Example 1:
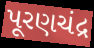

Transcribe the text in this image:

પૂરણચંદ્ર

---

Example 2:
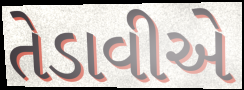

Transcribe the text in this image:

તેડાવીએ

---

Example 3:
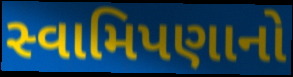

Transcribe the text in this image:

સ્વામિપણાનો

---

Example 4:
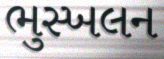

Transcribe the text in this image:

ભુસ્ખલન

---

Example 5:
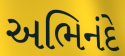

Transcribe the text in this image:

અભિનંદે